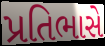
પ્રતિભાસે